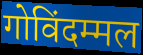
गोविंदम्मल